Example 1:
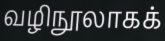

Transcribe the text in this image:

வழிநூலாகக்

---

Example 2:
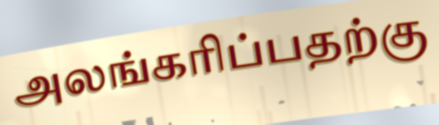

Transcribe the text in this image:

அலங்கரிப்பதற்கு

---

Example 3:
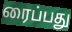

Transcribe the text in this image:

ரைப்பது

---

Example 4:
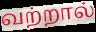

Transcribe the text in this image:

வற்றால்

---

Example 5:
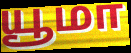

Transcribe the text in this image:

யூமா